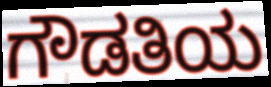
ಗೌಡತಿಯ